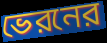
ভেরনের